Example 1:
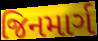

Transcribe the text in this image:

જિનમાર્ગ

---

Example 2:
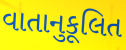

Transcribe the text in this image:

વાતાનુકૂલિત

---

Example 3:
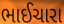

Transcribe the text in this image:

ભાઈચારા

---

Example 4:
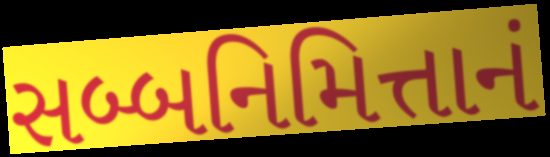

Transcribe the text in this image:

સબ્બનિમિત્તાનં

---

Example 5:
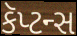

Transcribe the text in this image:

કૅપ્ટન્સ